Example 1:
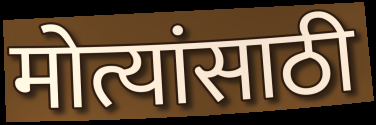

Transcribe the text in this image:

मोत्यांसाठी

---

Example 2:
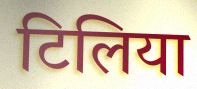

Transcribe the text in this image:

टिलिया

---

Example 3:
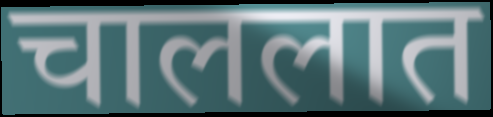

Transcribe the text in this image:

चाललात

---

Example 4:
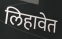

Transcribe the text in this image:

लिहावेत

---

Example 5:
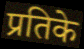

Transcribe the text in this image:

प्रतिके